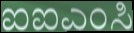
ಐಐಎಂಸಿ